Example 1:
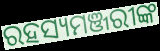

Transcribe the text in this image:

ରହସ୍ୟମଞ୍ଜରୀଙ୍କ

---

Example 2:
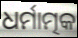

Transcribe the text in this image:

ଧର୍ମାତ୍ମକ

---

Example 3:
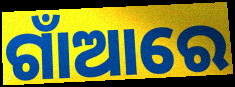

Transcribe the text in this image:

ଗାଁଆରେ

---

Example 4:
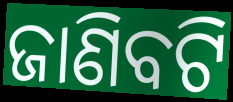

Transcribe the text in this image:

ଜାଣିବଟି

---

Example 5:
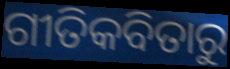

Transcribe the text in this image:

ଗୀତିକବିତାରୁ